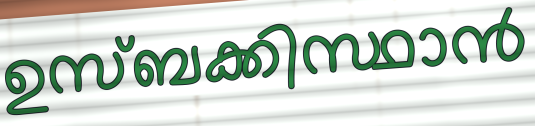
ഉസ്ബക്കിസ്ഥാൻ